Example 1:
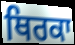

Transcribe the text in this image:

ਥਿਰਕਾ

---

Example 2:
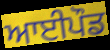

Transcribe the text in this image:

ਆਈਪੌਡ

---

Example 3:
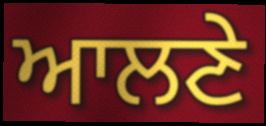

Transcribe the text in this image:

ਆਲਣੇ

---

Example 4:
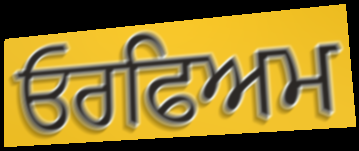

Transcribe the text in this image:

ਓਰਫਿਅਮ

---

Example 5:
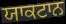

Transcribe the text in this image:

ਯਾਕਟਾਨ